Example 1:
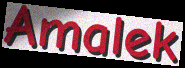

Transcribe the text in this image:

Amalek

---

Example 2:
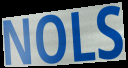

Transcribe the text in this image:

NOLS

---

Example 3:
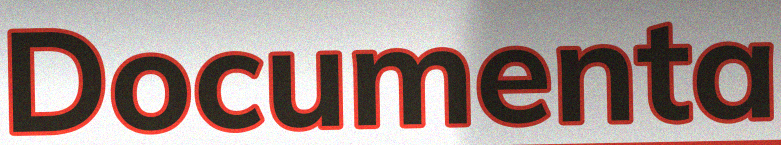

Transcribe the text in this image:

Documenta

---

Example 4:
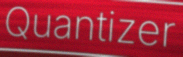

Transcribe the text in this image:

Quantizer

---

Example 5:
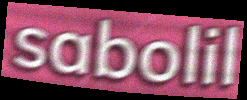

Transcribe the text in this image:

sabolil